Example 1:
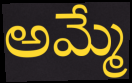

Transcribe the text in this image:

అమ్మే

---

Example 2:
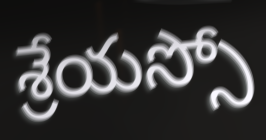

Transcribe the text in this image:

శ్రేయస్సో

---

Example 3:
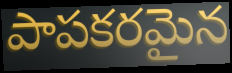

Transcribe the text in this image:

పాపకరమైన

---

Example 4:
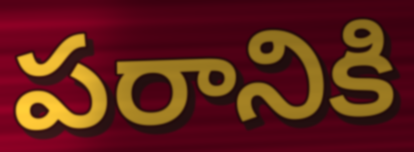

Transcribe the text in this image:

పరానికి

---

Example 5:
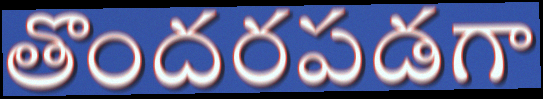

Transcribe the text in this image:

తొందరపడగా